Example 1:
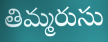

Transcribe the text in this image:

తిమ్మరుసు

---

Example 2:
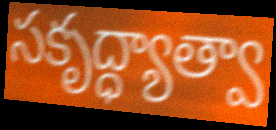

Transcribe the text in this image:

సకృద్ధ్యాత్వా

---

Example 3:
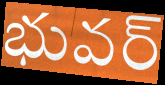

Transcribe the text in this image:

భువర్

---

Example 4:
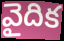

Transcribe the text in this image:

వైదిక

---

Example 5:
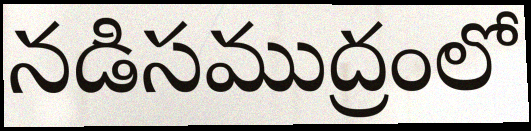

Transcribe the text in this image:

నడిసముద్రంలో